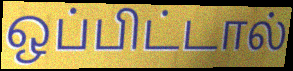
ஒப்பிட்டால்